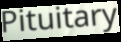
Pituitary